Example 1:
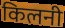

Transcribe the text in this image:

किलनी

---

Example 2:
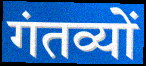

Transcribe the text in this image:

गंतव्यों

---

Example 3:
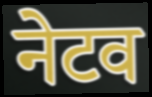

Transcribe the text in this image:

नेटव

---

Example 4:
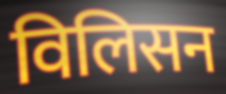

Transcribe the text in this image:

विलिसन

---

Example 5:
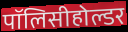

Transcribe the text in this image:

पॉलिसीहोल्डर